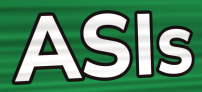
ASIs